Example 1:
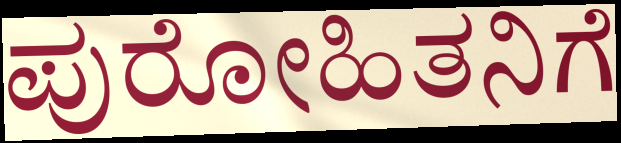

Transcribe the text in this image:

ಪುರೋಹಿತನಿಗೆ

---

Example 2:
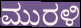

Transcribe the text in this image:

ಮುರಳಿ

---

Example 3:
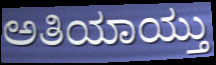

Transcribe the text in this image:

ಅತಿಯಾಯ್ತು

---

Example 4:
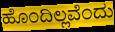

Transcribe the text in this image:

ಹೊಂದಿಲ್ಲವೆಂದು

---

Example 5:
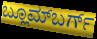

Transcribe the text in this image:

ಬ್ಲೂಮ್‌ಬರ್ಗ್